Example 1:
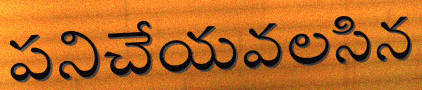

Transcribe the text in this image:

పనిచేయవలసిన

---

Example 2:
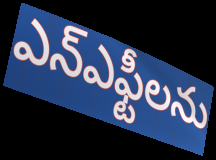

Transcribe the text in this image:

ఎన్ఎఫ్టీలను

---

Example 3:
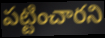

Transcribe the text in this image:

పట్టించారని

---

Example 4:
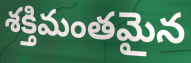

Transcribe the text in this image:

శక్తిమంతమైన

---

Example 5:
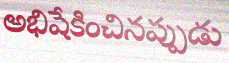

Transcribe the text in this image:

అభిషేకించినప్పుడు